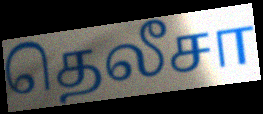
தெலீசா